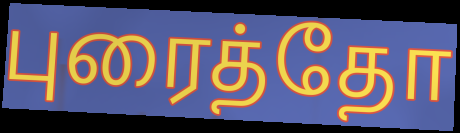
புரைத்தோ